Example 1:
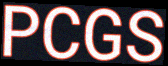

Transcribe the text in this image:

PCGS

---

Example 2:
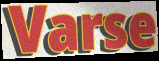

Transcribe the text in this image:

Varse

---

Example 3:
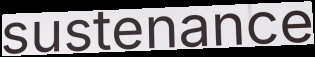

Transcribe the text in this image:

sustenance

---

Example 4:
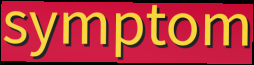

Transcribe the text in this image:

symptom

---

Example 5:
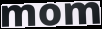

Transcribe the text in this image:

mom